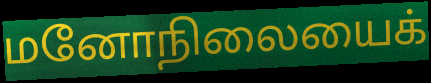
மனோநிலையைக்